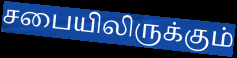
சபையிலிருக்கும்